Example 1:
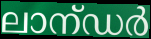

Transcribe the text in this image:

ലാന്ഡർ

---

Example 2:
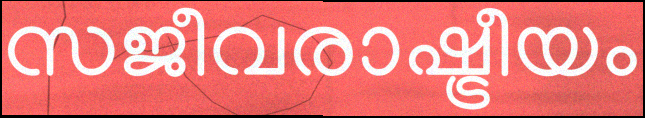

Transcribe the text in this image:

സജീവരാഷ്ട്രീയം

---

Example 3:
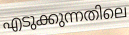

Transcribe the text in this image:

എടുക്കുന്നതിലെ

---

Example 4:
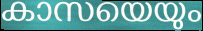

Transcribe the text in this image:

കാസയെയും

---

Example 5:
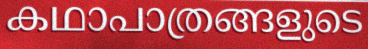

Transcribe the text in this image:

കഥാപാത്രങ്ങളുടെ